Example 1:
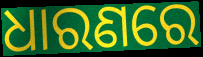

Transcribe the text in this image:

ଧାରଣରେ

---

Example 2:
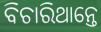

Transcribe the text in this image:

ବିଚାରିଥାନ୍ତେ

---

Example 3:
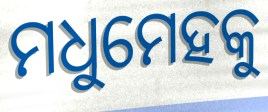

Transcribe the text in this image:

ମଧୁମେହକୁ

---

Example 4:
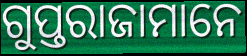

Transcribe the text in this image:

ଗୁପ୍ତରାଜାମାନେ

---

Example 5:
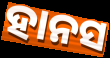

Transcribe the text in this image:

ହାନସ